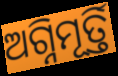
ଅଗ୍ନିମୂର୍ତ୍ତି